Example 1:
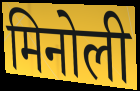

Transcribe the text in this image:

मिनोली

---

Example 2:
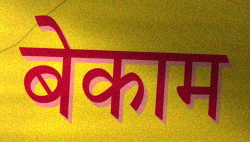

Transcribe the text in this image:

बेकाम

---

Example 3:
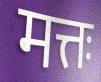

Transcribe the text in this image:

मत्तः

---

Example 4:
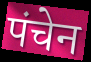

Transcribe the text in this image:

पंचेन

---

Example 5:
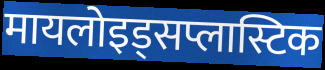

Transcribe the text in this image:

मायलोइड्सप्लास्टिक